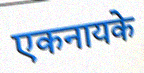
एकनायके